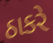
ઠાકરે